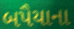
બપૈયાના